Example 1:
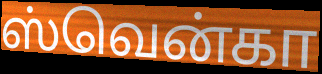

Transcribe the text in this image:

ஸ்வென்கா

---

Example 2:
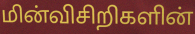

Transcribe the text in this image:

மின்விசிறிகளின்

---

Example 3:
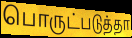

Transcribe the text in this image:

பொருட்படுத்தா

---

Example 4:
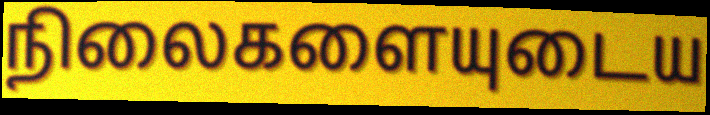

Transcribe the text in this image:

நிலைகளையுடைய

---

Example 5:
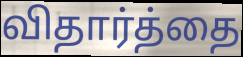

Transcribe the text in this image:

விதார்த்தை